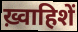
ख़्वाहिशें